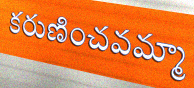
కరుణించవమ్మా